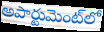
అపార్టుమెంట్‌లో